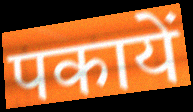
पकायें